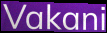
Vakani